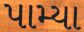
પામ્યા